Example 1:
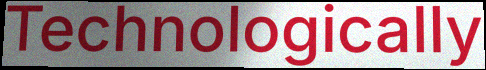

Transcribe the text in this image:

Technologically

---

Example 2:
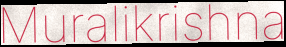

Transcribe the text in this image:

Muralikrishna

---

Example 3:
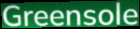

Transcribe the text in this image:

Greensole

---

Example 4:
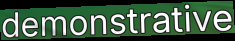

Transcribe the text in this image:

demonstrative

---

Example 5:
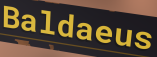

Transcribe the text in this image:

Baldaeus